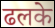
ढलके